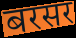
बरसर